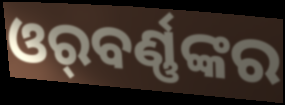
ଓର୍‌ବର୍ଣ୍ଣଙ୍କର